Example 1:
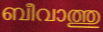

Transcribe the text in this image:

ബീവാത്തു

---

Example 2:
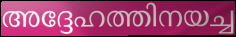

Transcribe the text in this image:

അദ്ദേഹത്തിനയച്ച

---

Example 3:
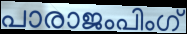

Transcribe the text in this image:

പാരാജംപിംഗ്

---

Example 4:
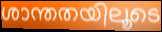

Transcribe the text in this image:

ശാന്തതയിലൂടെ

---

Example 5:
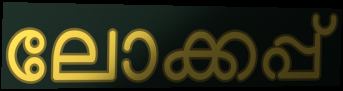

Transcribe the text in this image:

ലോക്കപ്പ്